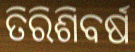
ତିରିଶିବର୍ଷ